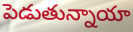
పెడుతున్నాయా